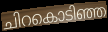
ചിറകൊടിഞ്ഞ